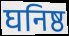
घनिष्ठ